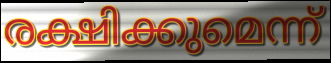
രക്ഷിക്കുമെന്ന്